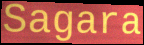
Sagara